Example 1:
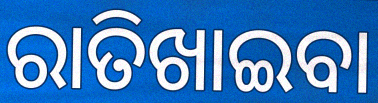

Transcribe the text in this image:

ରାତିଖାଇବା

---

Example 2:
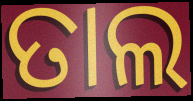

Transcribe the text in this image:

ତାଲ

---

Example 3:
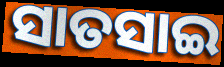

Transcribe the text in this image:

ସାତସାଇ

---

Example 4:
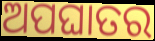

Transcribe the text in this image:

ଅପଘାତର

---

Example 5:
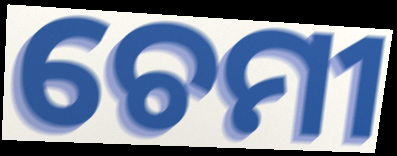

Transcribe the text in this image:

ଚେମୀ